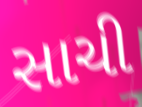
સાચી